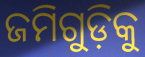
ଜମିଗୁଡ଼ିକୁ